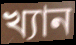
খ্যান